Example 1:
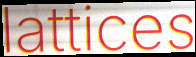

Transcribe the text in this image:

lattices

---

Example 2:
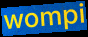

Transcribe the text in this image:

wompi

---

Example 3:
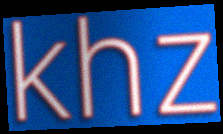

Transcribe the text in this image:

khz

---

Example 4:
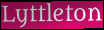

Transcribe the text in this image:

Lyttleton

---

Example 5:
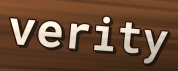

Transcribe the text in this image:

verity